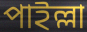
পাইল্লা